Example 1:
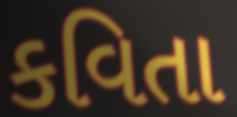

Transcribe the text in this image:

કવિતા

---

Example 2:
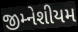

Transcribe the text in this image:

જીમ્નેશીયમ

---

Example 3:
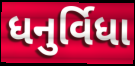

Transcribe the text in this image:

ધનુર્વિધા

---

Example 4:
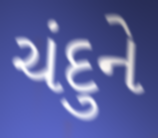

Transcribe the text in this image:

ચંદુને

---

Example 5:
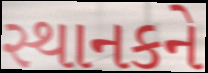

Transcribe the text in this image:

સ્થાનકને